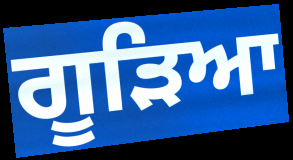
ਗੂੜਿਆ